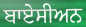
ਬਾਏਸੀਅਨ